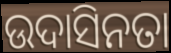
ଉଦାସିନତା